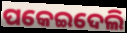
ପକେଇଦେଲି